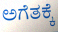
ಅಗೆತಕ್ಕೆ